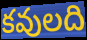
కవులది